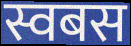
स्वबस